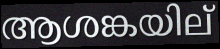
ആശങ്കയില്